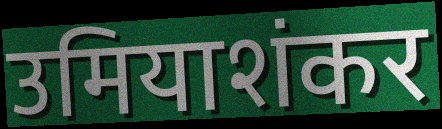
उमियाशंकर